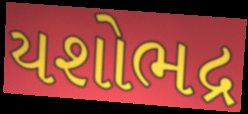
યશોભદ્ર